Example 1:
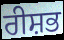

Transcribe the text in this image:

ਰੀਸ਼ਭ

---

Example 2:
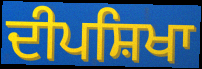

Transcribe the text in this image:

ਦੀਪਸ਼ਿਖਾ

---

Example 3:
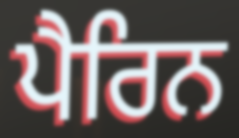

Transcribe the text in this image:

ਪੈਰਿਨ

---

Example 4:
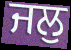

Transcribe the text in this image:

ਜਲੁ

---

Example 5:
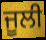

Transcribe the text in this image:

ਜੂਲੀ